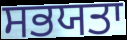
ਸਭਯਤਾ